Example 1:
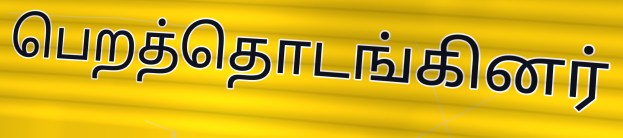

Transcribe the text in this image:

பெறத்தொடங்கினர்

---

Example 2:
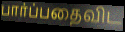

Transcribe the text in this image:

பார்ப்பதைவிட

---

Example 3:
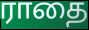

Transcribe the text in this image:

ராதை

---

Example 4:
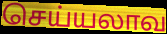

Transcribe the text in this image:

செய்யலாவ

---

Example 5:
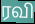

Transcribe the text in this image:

ரவி